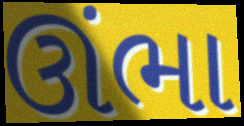
ઊંભા